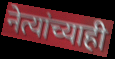
नेत्यांच्याही